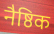
नैष्ठिक